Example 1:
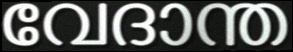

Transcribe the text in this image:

വേദാന്ത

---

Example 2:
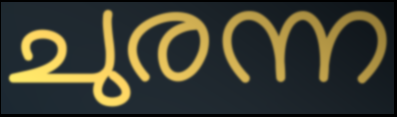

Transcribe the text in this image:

ചുരന്ന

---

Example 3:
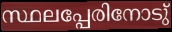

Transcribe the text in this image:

സ്ഥലപ്പേരിനോടു്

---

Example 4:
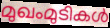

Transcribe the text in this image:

മുഖംമുടികൾ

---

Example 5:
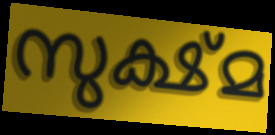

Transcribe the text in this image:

സുക്ഷ്മ